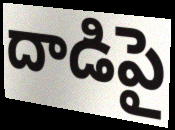
దాడిపై